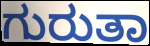
ಗುರುತಾ